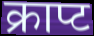
क्राप्ट